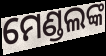
ମେଣ୍ଡଲଙ୍କ